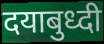
दयाबुध्दी